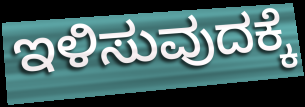
ಇಳಿಸುವುದಕ್ಕೆ